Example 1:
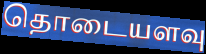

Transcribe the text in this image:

தொடையளவு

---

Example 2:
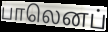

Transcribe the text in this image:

பாலெனப்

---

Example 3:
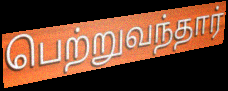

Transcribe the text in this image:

பெற்றுவந்தார்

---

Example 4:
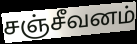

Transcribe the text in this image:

சஞ்சீவனம்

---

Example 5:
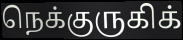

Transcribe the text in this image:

நெக்குருகிக்